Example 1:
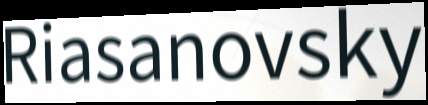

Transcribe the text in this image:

Riasanovsky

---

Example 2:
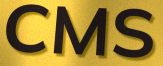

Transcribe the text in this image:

CMS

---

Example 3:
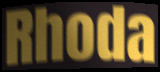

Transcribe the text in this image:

Rhoda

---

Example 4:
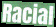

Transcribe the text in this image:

Racial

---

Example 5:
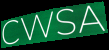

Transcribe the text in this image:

CWSA